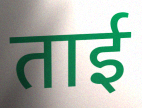
ताई